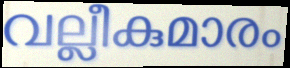
വല്ലീകുമാരം